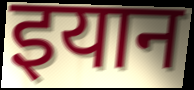
इयान